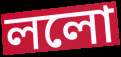
ললো